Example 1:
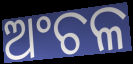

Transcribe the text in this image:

ଅଂଚଳ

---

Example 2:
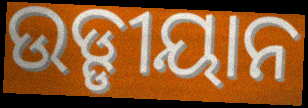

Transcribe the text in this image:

ଉଡ୍ଡୀୟାନ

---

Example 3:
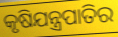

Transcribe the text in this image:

କୃଷିଯନ୍ତ୍ରପାତିର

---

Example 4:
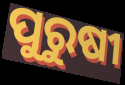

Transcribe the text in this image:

ପୁରୁଷୀ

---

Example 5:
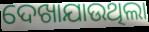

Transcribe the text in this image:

ଦେଖାଯାଉଥିଲା